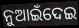
ନୁଆଇଁଦେଇ